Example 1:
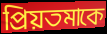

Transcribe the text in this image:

প্রিয়তমাকে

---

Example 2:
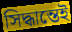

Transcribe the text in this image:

সিদ্ধান্তেই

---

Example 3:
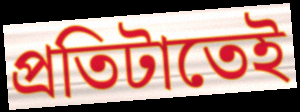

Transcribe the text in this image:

প্রতিটাতেই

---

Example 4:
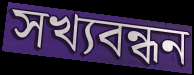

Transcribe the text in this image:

সখ্যবন্ধন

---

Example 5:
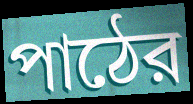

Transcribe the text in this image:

পাঠের